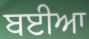
ਬਈਆ